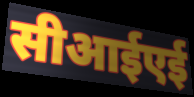
सीआईएई